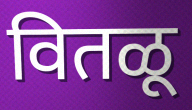
वितळू